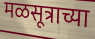
मळसूत्राच्या